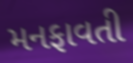
મનફાવતી